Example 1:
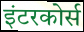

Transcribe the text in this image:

इंटरकोर्स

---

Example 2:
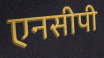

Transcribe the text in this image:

एनसीपी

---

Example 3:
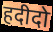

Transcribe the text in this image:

हदीदो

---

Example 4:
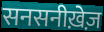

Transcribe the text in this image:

सनसनीख़ेज़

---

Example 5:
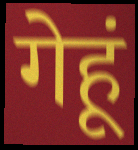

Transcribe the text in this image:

गेहूं